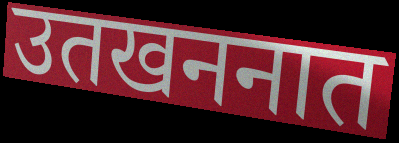
उतखननात